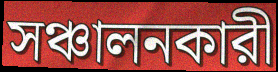
সঞ্চালনকারী